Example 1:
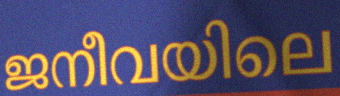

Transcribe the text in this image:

ജനീവയിലെ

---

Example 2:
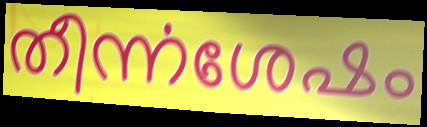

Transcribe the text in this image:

തീൎന്നശേഷം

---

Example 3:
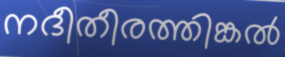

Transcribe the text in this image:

നദീതീരത്തിങ്കൽ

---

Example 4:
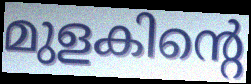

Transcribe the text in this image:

മുളകിന്റെ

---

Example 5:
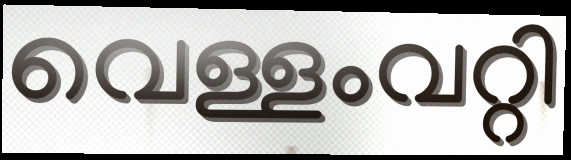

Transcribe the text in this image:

വെള്ളംവറ്റി